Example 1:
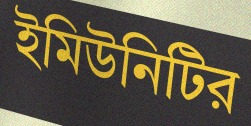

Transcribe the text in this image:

ইমিউনিটির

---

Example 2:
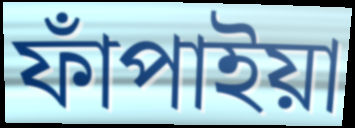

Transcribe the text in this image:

ফাঁপাইয়া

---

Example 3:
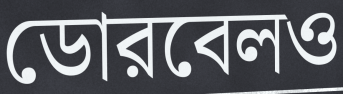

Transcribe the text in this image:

ডোরবেলও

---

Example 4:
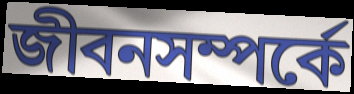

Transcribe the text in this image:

জীবনসম্পর্কে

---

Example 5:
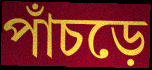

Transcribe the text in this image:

পাঁচড়ে